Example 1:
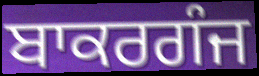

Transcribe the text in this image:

ਬਾਕਰਗੰਜ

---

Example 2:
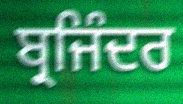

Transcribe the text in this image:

ਬ੍ਰਜਿੰਦਰ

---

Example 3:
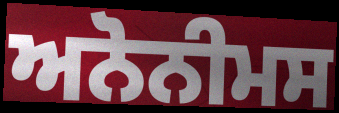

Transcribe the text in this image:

ਅਨੋਨੀਮਸ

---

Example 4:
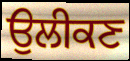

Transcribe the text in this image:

ਉਲੀਕਣ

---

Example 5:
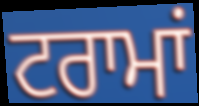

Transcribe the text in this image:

ਟਰਾਮਾਂ